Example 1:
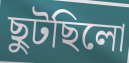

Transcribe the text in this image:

ছুটছিলো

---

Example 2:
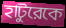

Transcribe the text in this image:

হাটুরেকে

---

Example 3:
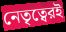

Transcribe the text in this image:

নেতৃত্বেরই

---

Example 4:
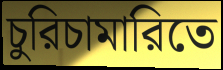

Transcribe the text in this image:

চুরিচামারিতে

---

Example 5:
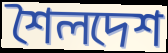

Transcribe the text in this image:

শৈলদেশ